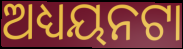
ଅଧ୍ୟୟନଟା